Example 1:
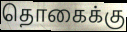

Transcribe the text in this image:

தொகைக்கு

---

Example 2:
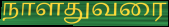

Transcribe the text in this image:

நாளதுவரை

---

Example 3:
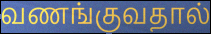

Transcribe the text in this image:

வணங்குவதால்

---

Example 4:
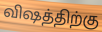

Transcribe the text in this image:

விஷத்திற்கு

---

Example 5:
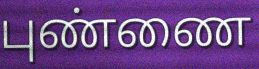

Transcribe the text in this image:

புண்ணை